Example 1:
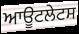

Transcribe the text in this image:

ਆਊਟਲੇਟਸ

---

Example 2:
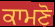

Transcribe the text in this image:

ਕਾਮਣੋ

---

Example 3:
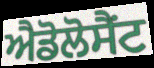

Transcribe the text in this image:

ਐਡੋਲੋਸੈਂਟ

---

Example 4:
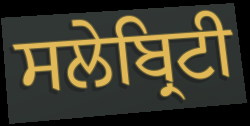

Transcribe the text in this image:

ਸਲੇਬ੍ਰਿਟੀ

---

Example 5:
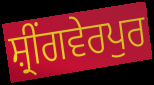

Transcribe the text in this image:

ਸ਼੍ਰੀਂਗਵੇਰਪੁਰ